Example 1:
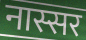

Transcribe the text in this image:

नास्सर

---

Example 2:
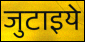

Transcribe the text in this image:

जुटाइये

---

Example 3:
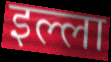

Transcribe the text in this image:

इल्ला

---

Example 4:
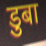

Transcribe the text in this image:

डुबा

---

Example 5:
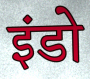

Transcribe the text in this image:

इंडो